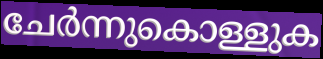
ചേർന്നുകൊള്ളുക